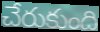
చేరుకుంది